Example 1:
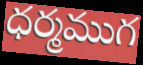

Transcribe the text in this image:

ధర్మముగ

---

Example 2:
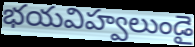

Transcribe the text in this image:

భయవిహ్వలుండై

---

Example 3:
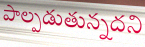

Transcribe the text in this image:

పాల్పడుతున్నదని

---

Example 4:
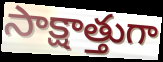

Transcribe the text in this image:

సాక్షాత్తుగా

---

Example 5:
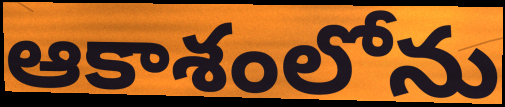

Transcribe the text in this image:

ఆకాశంలోను